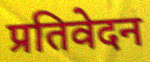
प्रतिवेदन